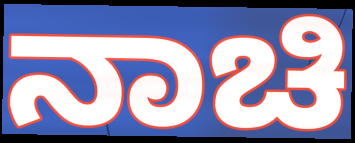
ನಾಚಿ